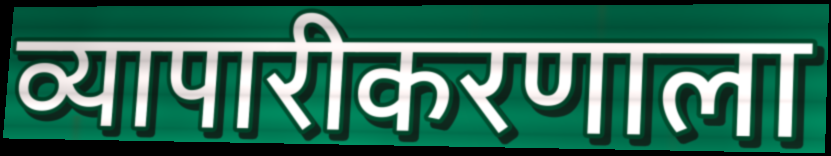
व्यापारीकरणाला